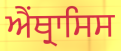
ਐਂਥ੍ਰਾਸਿਸ